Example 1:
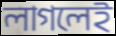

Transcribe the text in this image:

লাগলেই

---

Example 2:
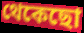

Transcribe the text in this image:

থেকেছো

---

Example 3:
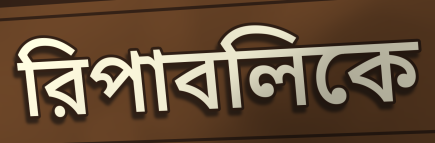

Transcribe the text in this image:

রিপাবলিকে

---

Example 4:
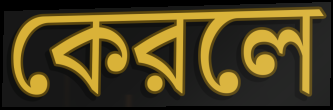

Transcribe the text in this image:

কেরলে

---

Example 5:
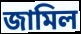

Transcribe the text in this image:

জামিল